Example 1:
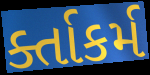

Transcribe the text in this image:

ર્ક્તાકર્મ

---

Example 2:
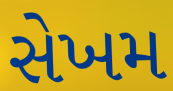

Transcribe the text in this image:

સેખમ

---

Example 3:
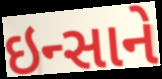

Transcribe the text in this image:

ઇન્સાને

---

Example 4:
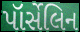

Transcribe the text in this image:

પૉર્સેલિન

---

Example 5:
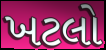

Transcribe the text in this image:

ખટલો